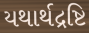
યથાર્થદ્રષ્ટિ